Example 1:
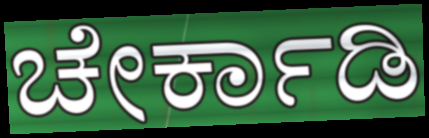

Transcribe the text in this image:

ಚೇರ್ಕಾಡಿ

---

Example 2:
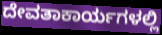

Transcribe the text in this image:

ದೇವತಾಕಾರ್ಯಗಳಲ್ಲಿ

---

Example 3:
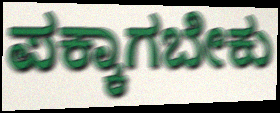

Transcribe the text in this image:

ಪಕ್ಕಾಗಬೇಕು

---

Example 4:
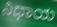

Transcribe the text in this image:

ನಿಧಾಯ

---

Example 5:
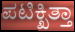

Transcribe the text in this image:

ಪಟಿಕ್ಖಿತ್ತಾ